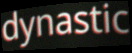
dynastic